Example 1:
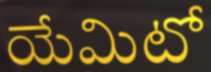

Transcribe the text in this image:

యేమిటో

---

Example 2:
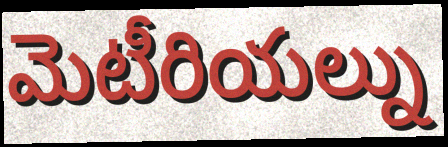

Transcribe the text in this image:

మెటీరియల్ను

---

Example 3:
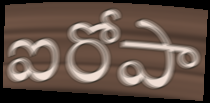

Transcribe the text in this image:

ఐరోపా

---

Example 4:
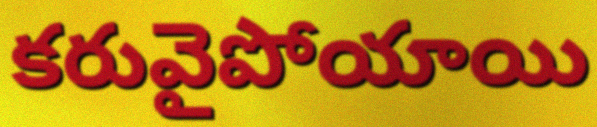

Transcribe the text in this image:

కరువైపోయాయి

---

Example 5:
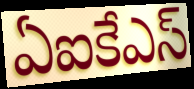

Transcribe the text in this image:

ఏఐకేఎస్